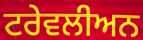
ਟਰੇਵਲੀਅਨ